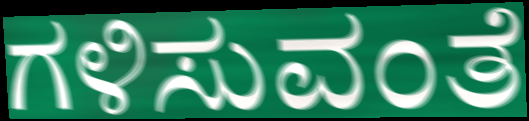
ಗಳಿಸುವಂತೆ